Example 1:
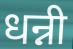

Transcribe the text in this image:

धन्नी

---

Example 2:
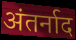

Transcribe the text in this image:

अंतर्नाद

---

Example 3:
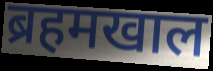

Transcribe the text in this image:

ब्रहमखाल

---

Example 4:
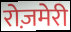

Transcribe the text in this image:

रोज़मेरी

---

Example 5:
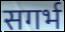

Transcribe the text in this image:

सगर्भ